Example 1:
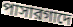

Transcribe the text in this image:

পাসারগাদে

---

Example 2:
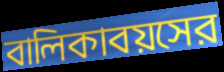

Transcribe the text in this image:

বালিকাবয়সের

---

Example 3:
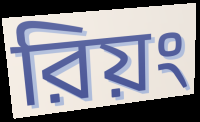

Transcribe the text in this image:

রিয়ং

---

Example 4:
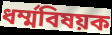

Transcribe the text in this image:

ধর্ম্মবিষয়ক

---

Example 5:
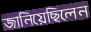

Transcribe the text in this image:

জানিয়েছিলেন